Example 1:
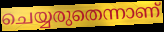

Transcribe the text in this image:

ചെയ്യരുതെന്നാണ്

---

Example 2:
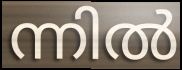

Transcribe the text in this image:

ന്നിൽ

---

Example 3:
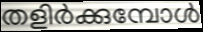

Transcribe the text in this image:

തളിർക്കുമ്പോൾ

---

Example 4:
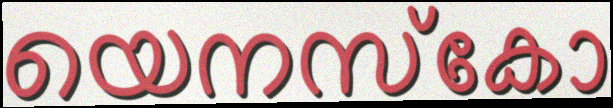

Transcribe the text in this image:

യെനസ്കോ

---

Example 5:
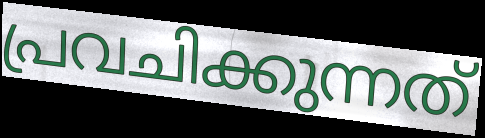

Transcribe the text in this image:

പ്രവചിക്കുന്നത്